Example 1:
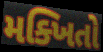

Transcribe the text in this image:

મક્ખિતો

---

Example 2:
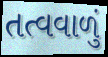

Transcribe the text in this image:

તત્વવાળું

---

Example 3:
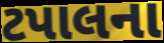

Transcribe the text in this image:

ટપાલના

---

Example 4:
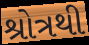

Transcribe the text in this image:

શ્રોત્રથી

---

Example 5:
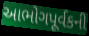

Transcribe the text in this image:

આભોગપૂર્વકની